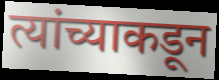
त्यांच्याकडून